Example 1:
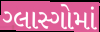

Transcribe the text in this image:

ગ્લાસ્ગોમાં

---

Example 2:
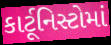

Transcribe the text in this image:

કાર્ટૂનિસ્ટોમાં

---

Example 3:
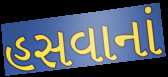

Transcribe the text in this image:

હસવાનાં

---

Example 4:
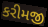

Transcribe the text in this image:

કરીમજી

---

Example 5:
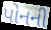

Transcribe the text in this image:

પોનની